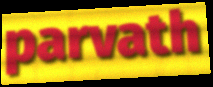
parvath